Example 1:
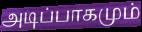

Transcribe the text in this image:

அடிப்பாகமும்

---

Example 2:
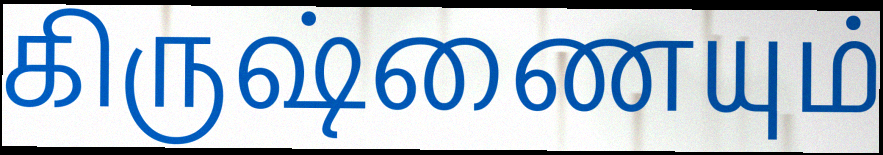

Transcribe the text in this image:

கிருஷ்ணையும்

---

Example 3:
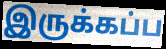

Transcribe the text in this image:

இருக்கப்ப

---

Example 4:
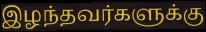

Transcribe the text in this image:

இழந்தவர்களுக்கு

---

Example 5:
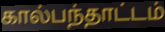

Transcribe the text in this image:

கால்பந்தாட்டம்